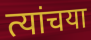
त्यांचया